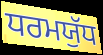
ਧਰਮਯੁੱਧ